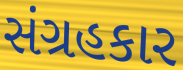
સંગ્રહકાર